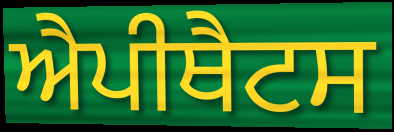
ਐਪੀਥੈਟਸ